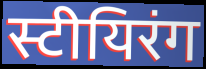
स्टीयिरंग